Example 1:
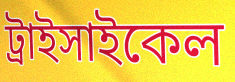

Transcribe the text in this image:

ট্রাইসাইকেল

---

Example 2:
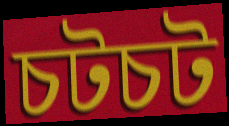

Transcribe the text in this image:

চটচট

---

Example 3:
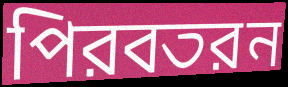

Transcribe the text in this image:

পিরবতরন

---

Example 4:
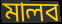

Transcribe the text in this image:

মালব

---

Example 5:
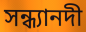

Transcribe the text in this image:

সন্ধ্যানদী